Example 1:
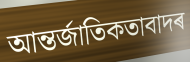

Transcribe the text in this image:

আন্তৰ্জাতিকতাবাদৰ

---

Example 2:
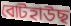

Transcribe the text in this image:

বোটহাউছ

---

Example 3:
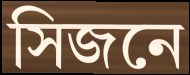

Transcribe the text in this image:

সিজনে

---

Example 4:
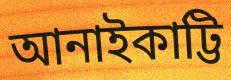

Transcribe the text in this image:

আনাইকাট্টি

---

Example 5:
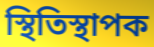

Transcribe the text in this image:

স্থিতিস্থাপক